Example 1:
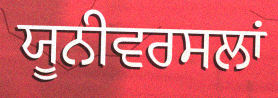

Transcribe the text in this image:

ਯੂਨੀਵਰਸਲਾਂ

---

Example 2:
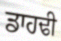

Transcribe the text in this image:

ਡਾਹਢੀ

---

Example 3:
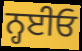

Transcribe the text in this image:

ਨ੍ਹਈਓ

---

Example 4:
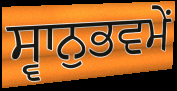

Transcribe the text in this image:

ਸ੍ਵਾਨੁਭਵਮੇਂ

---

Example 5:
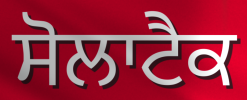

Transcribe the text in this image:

ਸੋਲਾਟੈਕ